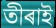
তীৰাই